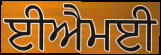
ਈਐਮਈ